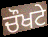
ਚੌਖਟੇ